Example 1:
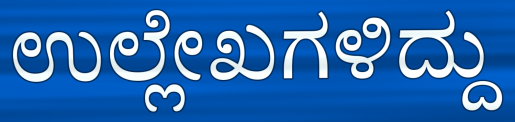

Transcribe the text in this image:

ಉಲ್ಲೇಖಗಳಿದ್ದು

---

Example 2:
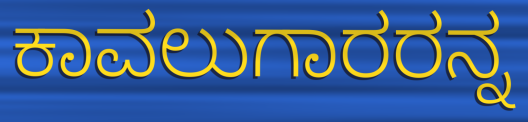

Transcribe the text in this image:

ಕಾವಲುಗಾರರನ್ನ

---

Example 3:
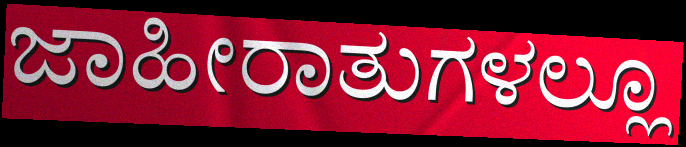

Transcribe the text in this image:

ಜಾಹೀರಾತುಗಳಲ್ಲೂ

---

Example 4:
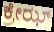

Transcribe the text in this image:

ಕ್ರೇಝ್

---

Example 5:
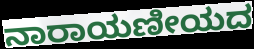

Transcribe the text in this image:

ನಾರಾಯಣೀಯದ